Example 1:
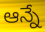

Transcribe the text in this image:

ఆన్నే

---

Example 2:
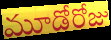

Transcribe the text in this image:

మూడోరోజు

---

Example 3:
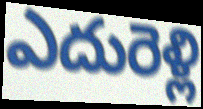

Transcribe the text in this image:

ఎదురెళ్లి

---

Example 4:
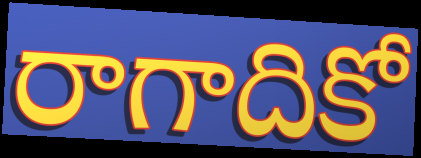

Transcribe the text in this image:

రాగాదికో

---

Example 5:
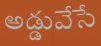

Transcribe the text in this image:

అడ్డువేసే